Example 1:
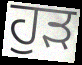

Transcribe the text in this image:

ਹੁੜ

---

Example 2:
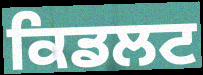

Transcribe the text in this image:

ਕਿਡਲਟ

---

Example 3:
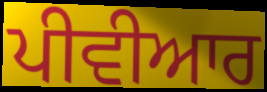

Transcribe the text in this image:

ਪੀਵੀਆਰ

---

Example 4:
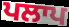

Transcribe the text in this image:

ਪਲਾਪ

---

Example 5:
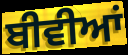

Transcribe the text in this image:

ਬੀਵੀਆਂ